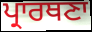
ਪ੍ਰਾਰਥਣਾ